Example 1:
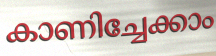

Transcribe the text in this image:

കാണിച്ചേക്കാം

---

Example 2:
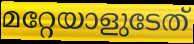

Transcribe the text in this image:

മറ്റേയാളുടേത്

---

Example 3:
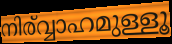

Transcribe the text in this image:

നിര്വ്വാഹമുള്ളൂ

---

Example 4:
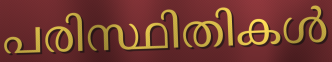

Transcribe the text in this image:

പരിസ്ഥിതികൾ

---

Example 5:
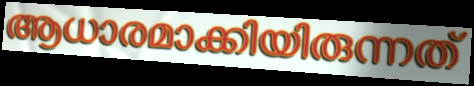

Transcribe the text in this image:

ആധാരമാക്കിയിരുന്നത്